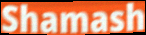
Shamash